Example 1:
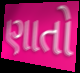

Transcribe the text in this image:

ણાતો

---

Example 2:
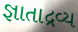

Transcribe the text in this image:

જ્ઞાતાદ્રવ્ય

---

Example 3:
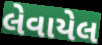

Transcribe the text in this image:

લેવાયેલ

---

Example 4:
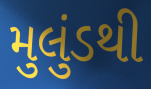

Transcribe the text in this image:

મુલુંડથી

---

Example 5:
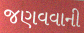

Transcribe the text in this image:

જણવવાની